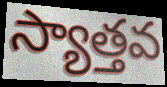
స్యాత్తవ